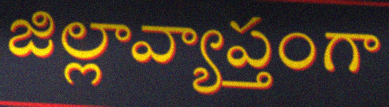
జిల్లావ్యాప్తంగా